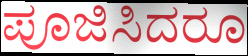
ಪೂಜಿಸಿದರೂ